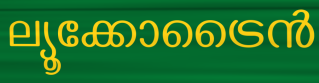
ല്യൂക്കോട്രൈൻ